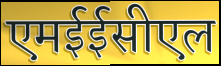
एमईईसीएल